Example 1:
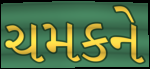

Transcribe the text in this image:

ચમકને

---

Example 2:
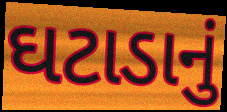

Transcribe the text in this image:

ઘટાડાનું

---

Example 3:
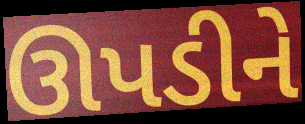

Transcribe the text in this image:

ઊપડીને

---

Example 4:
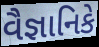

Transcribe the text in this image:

વૈજ્ઞાનિકે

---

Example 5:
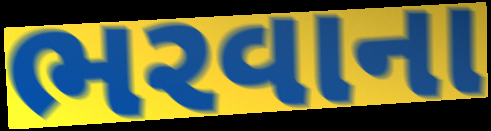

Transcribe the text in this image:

ભરવાના